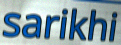
sarikhi